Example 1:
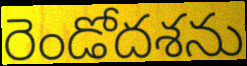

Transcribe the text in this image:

రెండోదశను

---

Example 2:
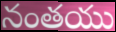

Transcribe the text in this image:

నంతయు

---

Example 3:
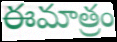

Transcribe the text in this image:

ఈమాత్రం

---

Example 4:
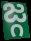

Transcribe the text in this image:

జ్గ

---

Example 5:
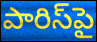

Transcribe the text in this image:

పారిస్‌పై